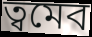
ত্বমেব